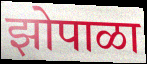
झोपाळा